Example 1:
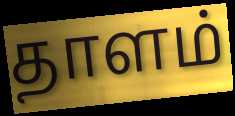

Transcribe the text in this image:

தாளம்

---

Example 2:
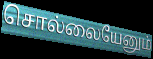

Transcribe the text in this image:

சொல்லையேனும்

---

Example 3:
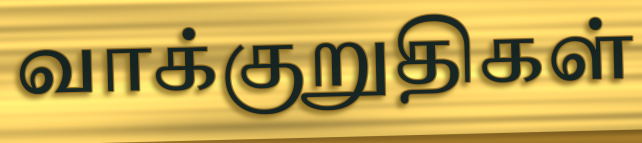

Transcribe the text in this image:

வாக்குறுதிகள்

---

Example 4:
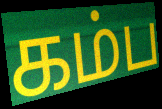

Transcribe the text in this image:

கம்ப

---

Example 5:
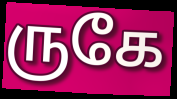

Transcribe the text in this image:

ருகே